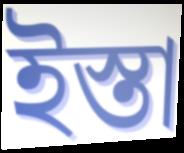
ইস্তা